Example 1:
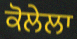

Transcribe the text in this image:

ਕੋਲੇਲਾ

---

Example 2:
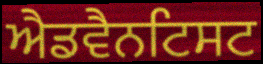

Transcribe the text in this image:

ਐਡਵੈਨਟਿਸਟ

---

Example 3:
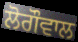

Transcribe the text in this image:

ਲੋਗੌਵਾਲ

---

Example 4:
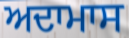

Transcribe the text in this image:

ਅਦਾਮਾਸ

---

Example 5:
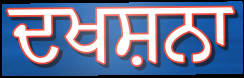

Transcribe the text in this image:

ਦਖਸ਼ਨਾ